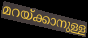
മറയ്ക്കാനുള്ള